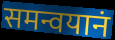
समन्वयानं